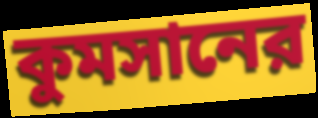
কুমসানের